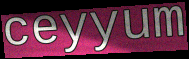
ceyyum